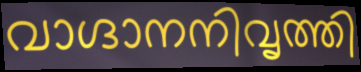
വാഗ്ദാനനിവൃത്തി